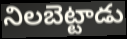
నిలబెట్టాడు